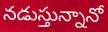
నడుస్తున్నానో